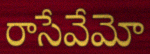
రాసేవేమో